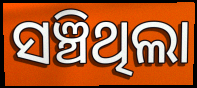
ସଞ୍ଚିଥିଲା